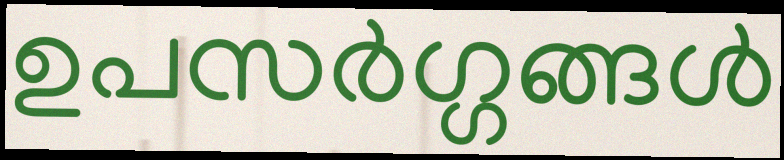
ഉപസർഗ്ഗങ്ങൾ